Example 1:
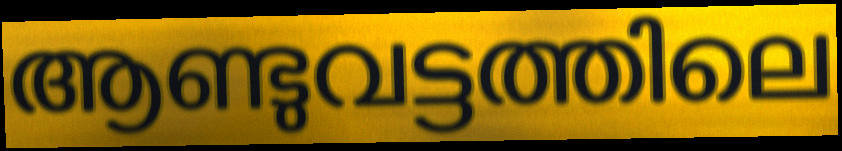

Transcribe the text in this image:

ആണ്ടുവട്ടത്തിലെ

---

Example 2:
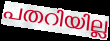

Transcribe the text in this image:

പതറിയില്ല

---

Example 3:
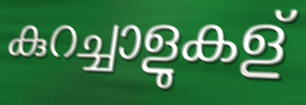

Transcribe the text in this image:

കുറച്ചാളുകള്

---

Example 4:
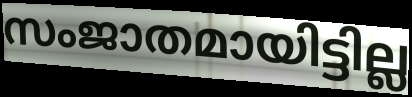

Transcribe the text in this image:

സംജാതമായിട്ടില്ല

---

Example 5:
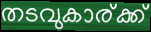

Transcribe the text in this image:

തടവുകാര്ക്ക്